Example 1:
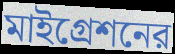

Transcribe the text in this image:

মাইগ্রেশনের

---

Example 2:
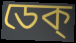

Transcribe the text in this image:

ডেক্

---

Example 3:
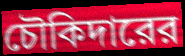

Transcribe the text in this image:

চৌকিদারের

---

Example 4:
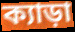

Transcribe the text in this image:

ক্যাড়া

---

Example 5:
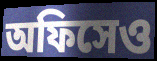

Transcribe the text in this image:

অফিসেও